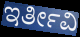
ಇರ್ತೀವಿ